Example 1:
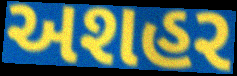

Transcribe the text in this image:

અશહર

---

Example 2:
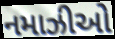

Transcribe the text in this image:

નમાઝીઓ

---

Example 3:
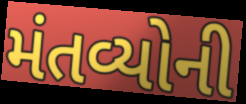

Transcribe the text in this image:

મંતવ્યોની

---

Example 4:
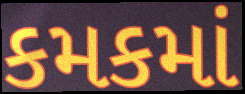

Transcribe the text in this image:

કમકમાં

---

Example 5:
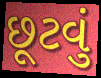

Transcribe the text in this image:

છૂટવું